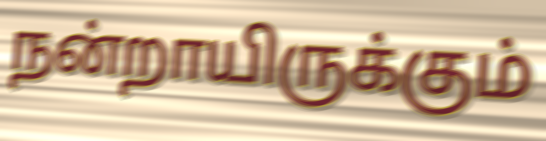
நன்றாயிருக்கும்